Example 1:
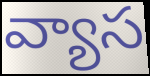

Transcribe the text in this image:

వ్యాస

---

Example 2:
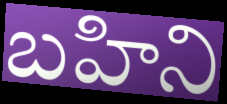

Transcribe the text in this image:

బహిని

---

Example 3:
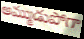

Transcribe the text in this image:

అమ్ముడుపోగా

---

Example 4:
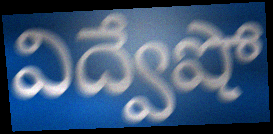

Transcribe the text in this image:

విద్వేషో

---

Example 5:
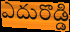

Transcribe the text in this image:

ఎదురొడ్డి